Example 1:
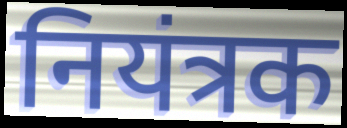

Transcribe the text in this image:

नियंत्रक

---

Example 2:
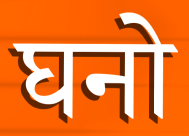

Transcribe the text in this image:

घनो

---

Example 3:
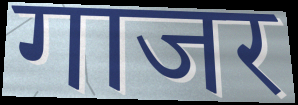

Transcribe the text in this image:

गाजर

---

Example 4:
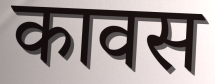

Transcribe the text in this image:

कावस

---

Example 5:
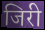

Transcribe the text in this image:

जिरी